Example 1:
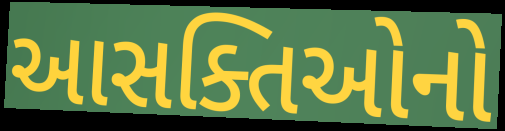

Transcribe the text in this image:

આસક્તિઓનો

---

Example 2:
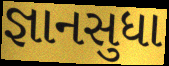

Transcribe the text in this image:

જ્ઞાનસુધા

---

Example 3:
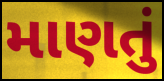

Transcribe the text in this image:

માણતું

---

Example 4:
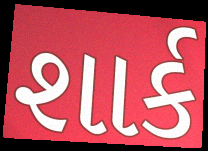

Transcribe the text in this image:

શાર્ક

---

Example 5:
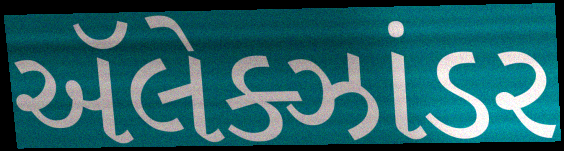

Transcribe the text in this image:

ઍલેક્ઝાંડર